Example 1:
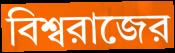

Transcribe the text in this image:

বিশ্বরাজের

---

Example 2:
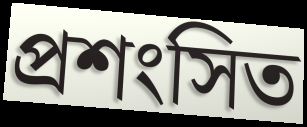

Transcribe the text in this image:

প্রশংসিত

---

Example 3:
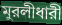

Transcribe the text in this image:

মুরলীধারী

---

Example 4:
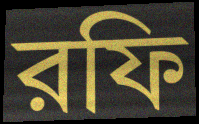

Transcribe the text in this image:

রফি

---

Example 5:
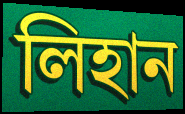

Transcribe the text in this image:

লিহান